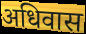
अधिवास